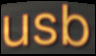
usb